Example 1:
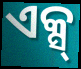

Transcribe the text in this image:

ଏକ୍ସ୍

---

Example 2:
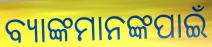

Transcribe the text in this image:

ବ୍ୟାଙ୍କମାନଙ୍କପାଇଁ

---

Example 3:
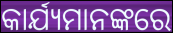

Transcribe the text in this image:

କାର୍ଯ୍ୟମାନଙ୍କରେ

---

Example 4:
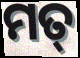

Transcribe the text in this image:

ମତ୍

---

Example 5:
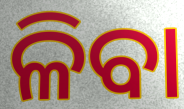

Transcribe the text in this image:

ଳିବା